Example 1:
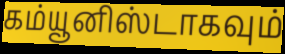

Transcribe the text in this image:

கம்யூனிஸ்டாகவும்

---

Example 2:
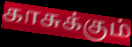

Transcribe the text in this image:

காசுக்கும்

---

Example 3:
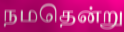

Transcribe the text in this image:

நமதென்று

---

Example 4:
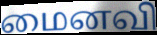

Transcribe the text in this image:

மைனவி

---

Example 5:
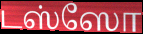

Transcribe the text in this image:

டஸ்ஸோ